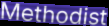
Methodist